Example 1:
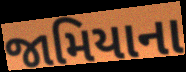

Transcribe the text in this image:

જામિયાના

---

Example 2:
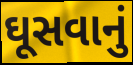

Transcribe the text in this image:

ઘૂસવાનું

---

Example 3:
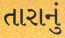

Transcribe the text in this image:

તારાનું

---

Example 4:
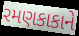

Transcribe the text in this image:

રમણકાકાને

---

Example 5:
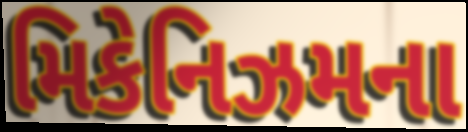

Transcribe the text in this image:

મિકેનિઝમના